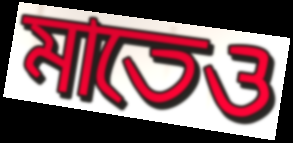
মাতেও